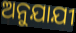
ଅନୁଯାଯୀ